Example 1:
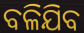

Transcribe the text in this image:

ବଳିଯିବ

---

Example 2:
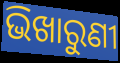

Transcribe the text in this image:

ଭିଖାରୁଣୀ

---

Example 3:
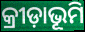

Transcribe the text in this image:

କ୍ରୀଡ଼ାଭୂମି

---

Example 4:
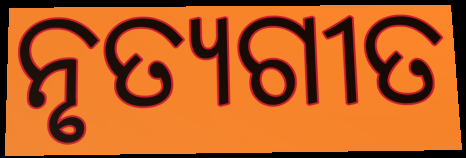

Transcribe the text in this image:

ନୃତ୍ୟଗୀତ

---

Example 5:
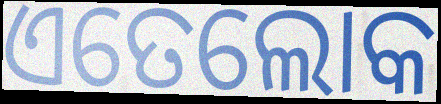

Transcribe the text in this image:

ଏତେଲୋକ